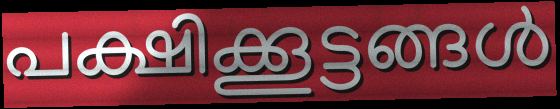
പക്ഷിക്കൂട്ടങ്ങൾ